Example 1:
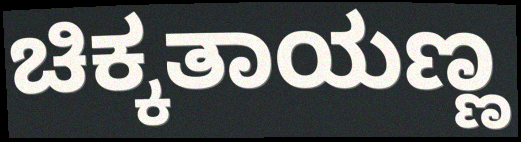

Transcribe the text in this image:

ಚಿಕ್ಕತಾಯಣ್ಣ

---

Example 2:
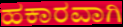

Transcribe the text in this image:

ಹಕಾರವಾಗಿ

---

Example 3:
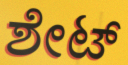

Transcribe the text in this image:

ಶೇಟ್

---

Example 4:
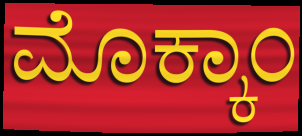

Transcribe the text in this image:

ಮೊಕ್ಕಾಂ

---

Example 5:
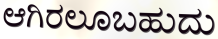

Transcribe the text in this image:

ಆಗಿರಲೂಬಹುದು